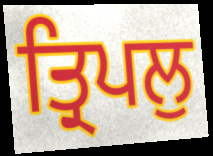
ਤ੍ਰਿਪਲੁ